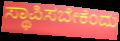
ಸ್ಥಾಪಿಸಬೇಕೆಂದು